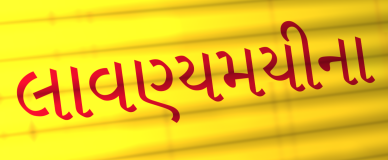
લાવણ્યમયીના